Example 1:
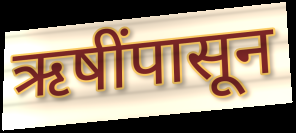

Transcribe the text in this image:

ऋषींपासून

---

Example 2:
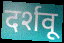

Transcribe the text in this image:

दर्शवू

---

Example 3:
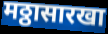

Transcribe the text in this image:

मठ्ठासारखा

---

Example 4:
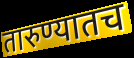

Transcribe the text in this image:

तारुण्यातच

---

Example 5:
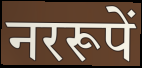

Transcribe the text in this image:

नररूपें